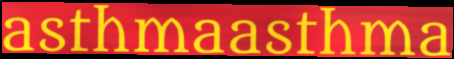
asthmaasthma